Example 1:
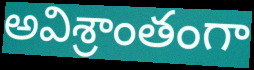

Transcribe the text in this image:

అవిశ్రాంతంగా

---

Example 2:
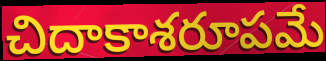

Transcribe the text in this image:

చిదాకాశరూపమే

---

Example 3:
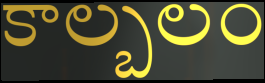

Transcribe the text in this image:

కాల్బలం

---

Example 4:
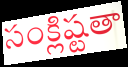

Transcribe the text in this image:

సంక్లిష్టతా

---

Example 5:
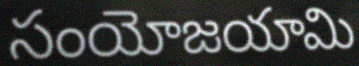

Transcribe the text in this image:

సంయోజయామి